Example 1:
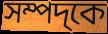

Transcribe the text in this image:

সম্পদ্‌কে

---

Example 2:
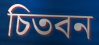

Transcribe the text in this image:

চিতবন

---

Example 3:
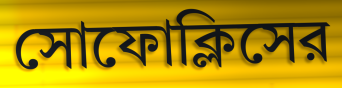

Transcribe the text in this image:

সোফোক্লিসের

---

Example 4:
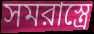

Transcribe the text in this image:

সমরাস্ত্রে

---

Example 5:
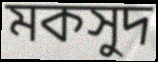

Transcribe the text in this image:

মকসুদ